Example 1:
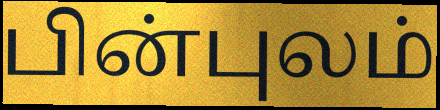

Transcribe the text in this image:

பின்புலம்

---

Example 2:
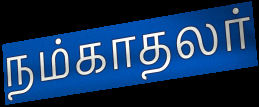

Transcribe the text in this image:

நம்காதலர்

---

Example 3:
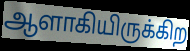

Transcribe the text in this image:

ஆளாகியிருக்கிற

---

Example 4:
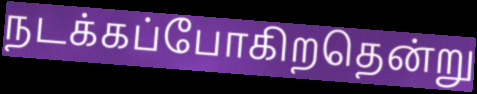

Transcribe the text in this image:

நடக்கப்போகிறதென்று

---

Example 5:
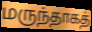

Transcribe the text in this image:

மருந்தாகத்